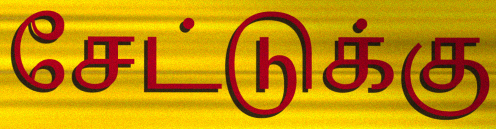
சேட்டுக்கு